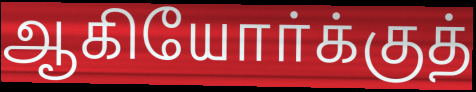
ஆகியோர்க்குத்